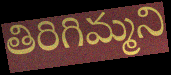
తిరిగిమ్మని